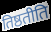
तिष्ठतीति